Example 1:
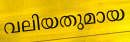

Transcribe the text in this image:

വലിയതുമായ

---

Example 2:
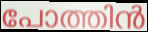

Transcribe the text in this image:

പോത്തിൻ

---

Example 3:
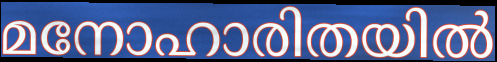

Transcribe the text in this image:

മനോഹാരിതയിൽ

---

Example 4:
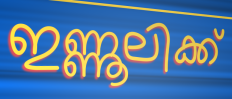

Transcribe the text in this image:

ഇണ്ണൂലിക്ക്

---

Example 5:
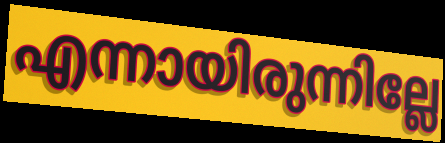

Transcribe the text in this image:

എന്നായിരുന്നില്ലേ